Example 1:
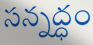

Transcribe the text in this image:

సన్నద్ధం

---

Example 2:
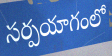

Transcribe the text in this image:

సర్పయాగంలో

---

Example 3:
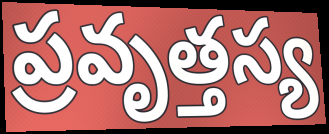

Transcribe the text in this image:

ప్రవృత్తస్య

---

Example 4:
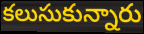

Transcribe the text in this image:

కలుసుకున్నారు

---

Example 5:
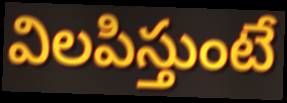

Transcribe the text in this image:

విలపిస్తుంటే